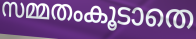
സമ്മതംകൂടാതെ